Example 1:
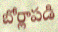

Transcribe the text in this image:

బోర్లాపడి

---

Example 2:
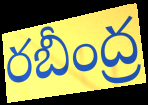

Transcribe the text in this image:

రబీంద్ర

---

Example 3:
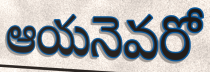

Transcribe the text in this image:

ఆయనెవరో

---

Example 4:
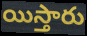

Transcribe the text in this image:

యిస్తారు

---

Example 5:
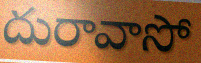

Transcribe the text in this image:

దురావాసో